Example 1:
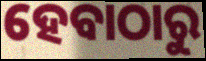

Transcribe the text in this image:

ହେବାଠାରୁ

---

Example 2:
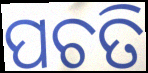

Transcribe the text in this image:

ପଚତି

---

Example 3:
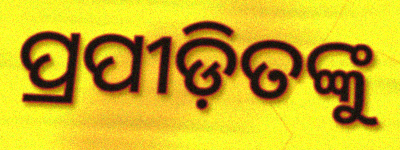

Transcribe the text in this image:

ପ୍ରପୀଡ଼ିତଙ୍କୁ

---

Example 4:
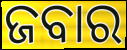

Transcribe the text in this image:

ଜବାର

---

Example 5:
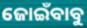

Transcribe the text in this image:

ଜୋଇଁବାବୁ